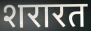
शरारत